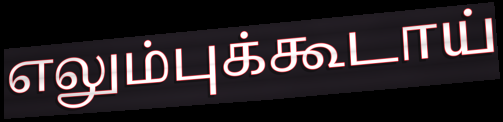
எலும்புக்கூடாய்